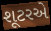
શૂટરએ